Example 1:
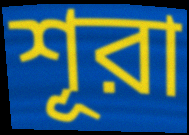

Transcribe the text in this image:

শূরা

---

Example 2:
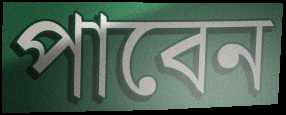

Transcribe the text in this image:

পাবেন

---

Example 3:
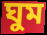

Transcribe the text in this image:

ঘুম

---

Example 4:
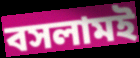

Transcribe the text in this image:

বসলামই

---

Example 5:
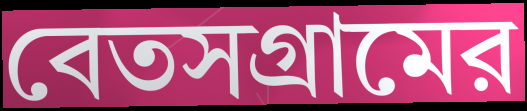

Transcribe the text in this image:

বেতসগ্রামের